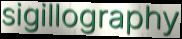
sigillography